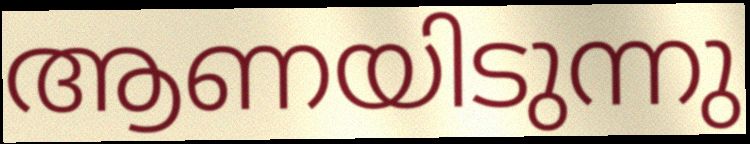
ആണയിടുന്നു